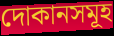
দোকানসমূহ